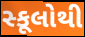
સ્કૂલોથી